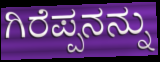
ಗಿರೆಪ್ಪನನ್ನು